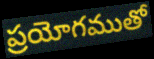
ప్రయోగముతో